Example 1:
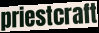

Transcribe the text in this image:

priestcraft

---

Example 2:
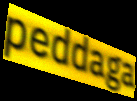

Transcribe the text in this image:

peddaga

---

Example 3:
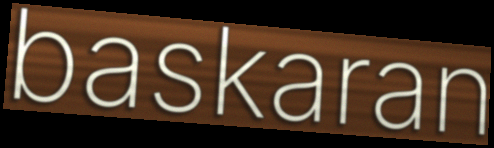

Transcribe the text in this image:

baskaran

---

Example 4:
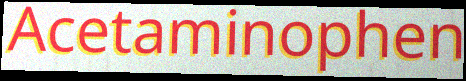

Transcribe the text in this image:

Acetaminophen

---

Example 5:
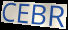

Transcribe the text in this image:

CEBR